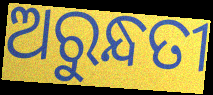
ଅରୁନ୍ଧତୀ